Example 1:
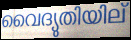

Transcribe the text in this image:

വൈദ്യുതിയില്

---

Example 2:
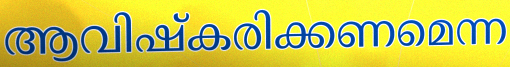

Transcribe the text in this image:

ആവിഷ്കരിക്കണമെന്ന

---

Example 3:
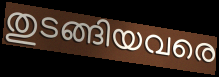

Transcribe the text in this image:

തുടങ്ങിയവരെ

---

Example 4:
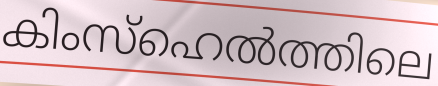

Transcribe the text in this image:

കിംസ്ഹെൽത്തിലെ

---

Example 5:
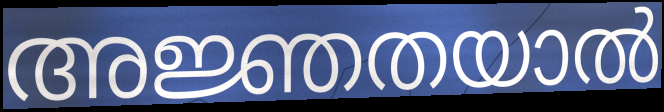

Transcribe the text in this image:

അജ്ഞതയാൽ